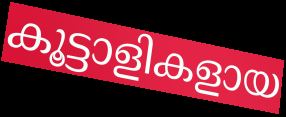
കൂട്ടാളികളായ